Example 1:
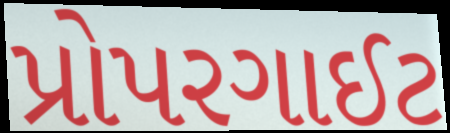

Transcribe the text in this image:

પ્રોપરગાઈટ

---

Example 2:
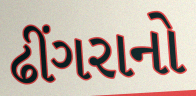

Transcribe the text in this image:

ઢીંગરાનો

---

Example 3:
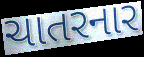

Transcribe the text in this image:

ચાતરનાર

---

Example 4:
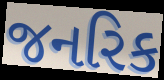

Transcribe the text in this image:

જનરિક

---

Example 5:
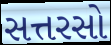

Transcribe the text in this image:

સત્તરસો